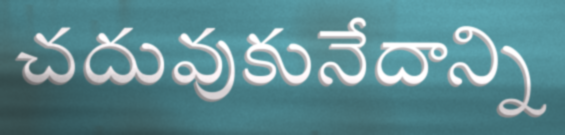
చదువుకునేదాన్ని